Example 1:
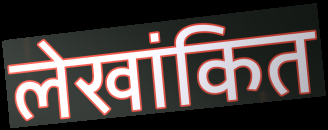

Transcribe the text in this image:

लेखांकित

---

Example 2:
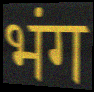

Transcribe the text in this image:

भंग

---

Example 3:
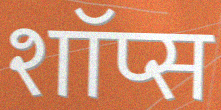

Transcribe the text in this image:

शॉप्स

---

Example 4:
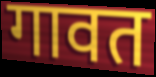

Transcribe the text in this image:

गावत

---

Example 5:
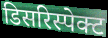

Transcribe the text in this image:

डिसरिस्पेक्ट